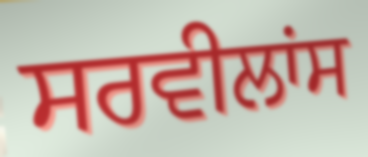
ਸਰਵੀਲਾਂਸ